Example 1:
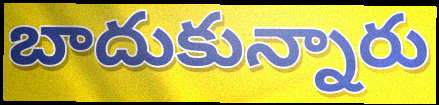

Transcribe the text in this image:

బాదుకున్నారు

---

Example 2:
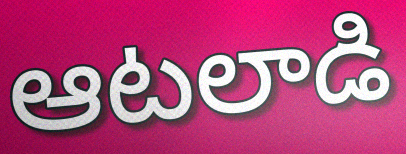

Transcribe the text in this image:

ఆటలాడి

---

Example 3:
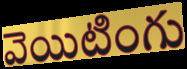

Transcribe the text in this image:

వెయిటింగు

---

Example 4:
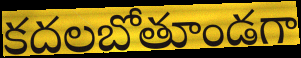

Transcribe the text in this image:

కదలబోతూండగా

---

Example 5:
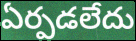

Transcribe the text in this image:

ఏర్పడలేదు